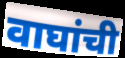
वाघांची